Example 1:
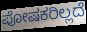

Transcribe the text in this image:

ಪೋಷಕರಿಲ್ಲದೆ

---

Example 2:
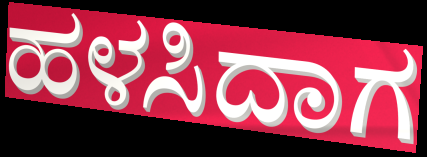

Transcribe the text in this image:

ಹಳಸಿದಾಗ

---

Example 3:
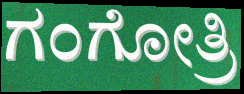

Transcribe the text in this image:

ಗಂಗೋತ್ರಿ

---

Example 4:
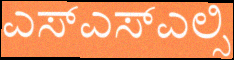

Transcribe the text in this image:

ಎಸ್ಎಸ್ಎಲ್ಸಿ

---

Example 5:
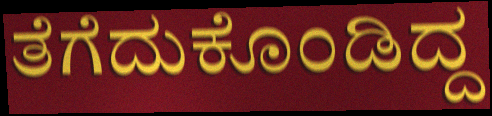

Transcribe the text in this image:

ತೆಗೆದುಕೊಂಡಿದ್ದ